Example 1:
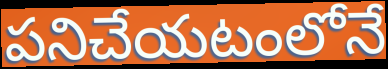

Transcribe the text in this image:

పనిచేయటంలోనే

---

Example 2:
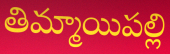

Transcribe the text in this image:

తిమ్మాయిపల్లి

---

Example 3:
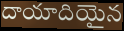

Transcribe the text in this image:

దాయాదియైన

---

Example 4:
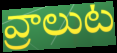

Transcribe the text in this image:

వ్రాలుట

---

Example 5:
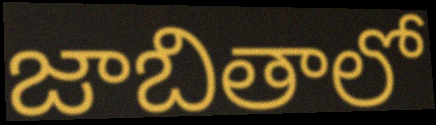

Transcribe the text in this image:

జాబితాలో